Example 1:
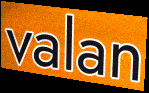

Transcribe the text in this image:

valan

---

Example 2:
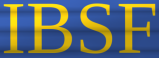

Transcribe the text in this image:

IBSF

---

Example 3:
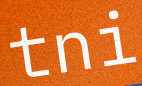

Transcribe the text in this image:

tni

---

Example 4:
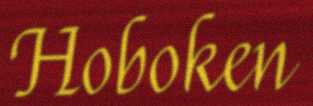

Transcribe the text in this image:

Hoboken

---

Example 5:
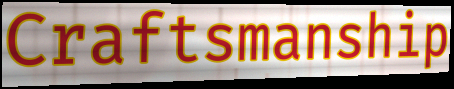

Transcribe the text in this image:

Craftsmanship